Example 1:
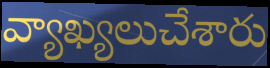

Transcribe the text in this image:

వ్యాఖ్యలుచేశారు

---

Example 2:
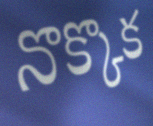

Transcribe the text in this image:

నొక్కొక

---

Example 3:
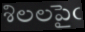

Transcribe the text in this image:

శిలలపైఁ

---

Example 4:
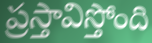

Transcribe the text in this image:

ప్రస్తావిస్తోంది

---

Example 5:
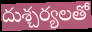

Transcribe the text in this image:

దుశ్చర్యలతో